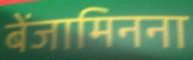
बेंजामिनना